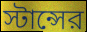
স্টান্সের